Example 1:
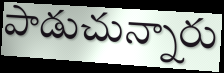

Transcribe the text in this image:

పాడుచున్నారు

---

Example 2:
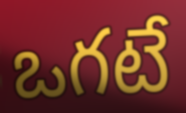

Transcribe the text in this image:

ఒగటే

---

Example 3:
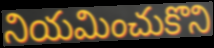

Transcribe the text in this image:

నియమించుకొని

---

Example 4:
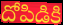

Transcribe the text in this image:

దోపిడికి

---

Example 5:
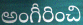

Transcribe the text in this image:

అంగీరించి